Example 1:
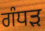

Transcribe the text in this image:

ਗੰਧੜ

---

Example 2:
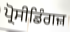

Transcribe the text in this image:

ਪ੍ਰੋਸੀਡਿੰਗਜ਼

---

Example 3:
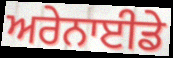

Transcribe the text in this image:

ਅਰੇਨਾਈਡੇ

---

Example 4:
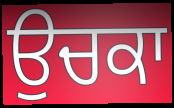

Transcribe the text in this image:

ਉਚਕਾ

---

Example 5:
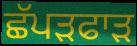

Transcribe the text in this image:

ਛੱਪੜਫਾੜ